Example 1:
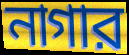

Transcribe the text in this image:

নাগার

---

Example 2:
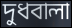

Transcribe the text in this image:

দুধবালা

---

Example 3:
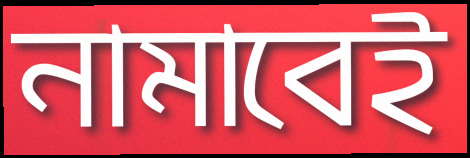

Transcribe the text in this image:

নামাবেই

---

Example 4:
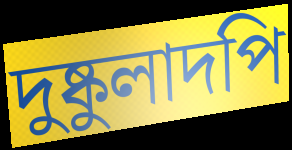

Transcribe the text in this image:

দুষ্কুলাদপি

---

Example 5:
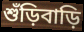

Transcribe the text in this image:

শুঁড়িবাড়ি